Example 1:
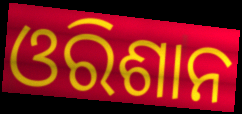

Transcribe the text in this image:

ଓରିଶାନ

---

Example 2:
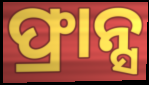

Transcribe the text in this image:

ଫ୍ରାନ୍ସ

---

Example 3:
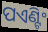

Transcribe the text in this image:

ପଏଣ୍ଟିଂ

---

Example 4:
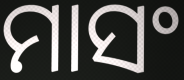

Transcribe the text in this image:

ମାସଂ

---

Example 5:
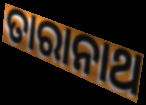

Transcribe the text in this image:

ତାରାନାଥ